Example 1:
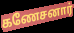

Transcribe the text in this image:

கணேசனார்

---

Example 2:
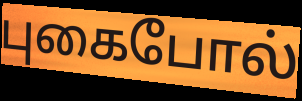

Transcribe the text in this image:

புகைபோல்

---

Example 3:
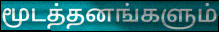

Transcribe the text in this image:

மூடத்தனங்களும்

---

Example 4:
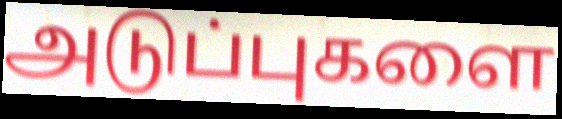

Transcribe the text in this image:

அடுப்புகளை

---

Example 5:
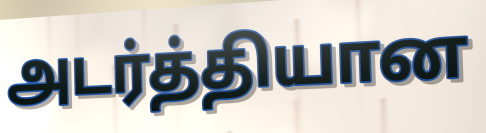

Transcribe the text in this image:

அடர்த்தியான